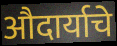
औदार्याचे